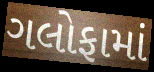
ગલોફામાં